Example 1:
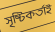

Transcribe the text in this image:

সৃষ্টিকৰ্তাই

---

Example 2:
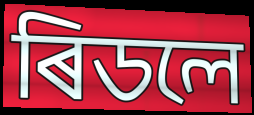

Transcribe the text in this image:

ৰিডলে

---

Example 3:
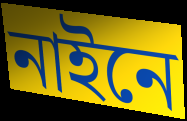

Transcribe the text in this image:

নাইনে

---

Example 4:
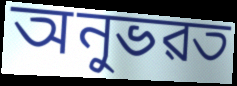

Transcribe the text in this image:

অনুভৱত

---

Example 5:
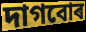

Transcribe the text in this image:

দাগবোৰ